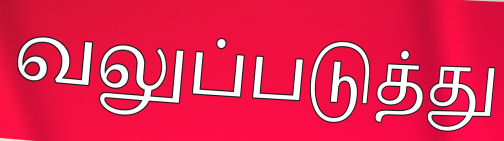
வலுப்படுத்து